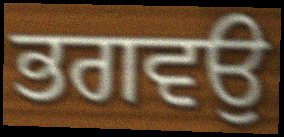
ਭਗਵਉ